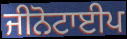
ਜੀਨੋਟਾਈਪ